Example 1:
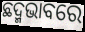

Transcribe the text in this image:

ଛଦ୍ମଭାବରେ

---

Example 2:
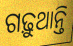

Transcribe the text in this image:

ଗଢ଼ୁଥାନ୍ତି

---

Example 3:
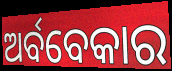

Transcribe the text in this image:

ଅର୍ବବେକାର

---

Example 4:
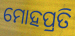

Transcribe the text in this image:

ମୋହପ୍ରତି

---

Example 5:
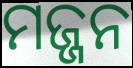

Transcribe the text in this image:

ମଜ୍ଜନ